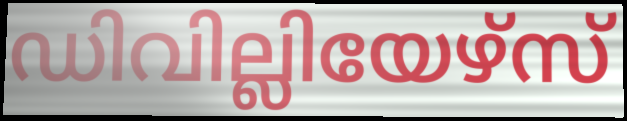
ഡിവില്ലിയേഴ്സ്